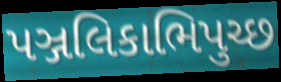
પઞ્જલિકાભિપુચ્છ